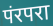
पंरपरा